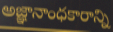
అజ్ఞానాంధకారాన్ని